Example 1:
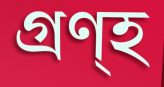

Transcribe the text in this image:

গ্ৰণ্হ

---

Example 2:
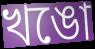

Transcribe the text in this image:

খঙো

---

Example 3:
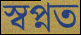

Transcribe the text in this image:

স্বপ্নত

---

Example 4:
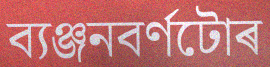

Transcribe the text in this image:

ব্যঞ্জনবৰ্ণটোৰ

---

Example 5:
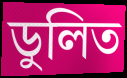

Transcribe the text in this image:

ডুলিত